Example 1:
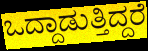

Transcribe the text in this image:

ಒದ್ದಾಡುತ್ತಿದ್ದರೆ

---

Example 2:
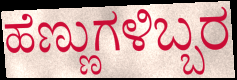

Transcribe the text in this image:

ಹೆಣ್ಣುಗಳಿಬ್ಬರ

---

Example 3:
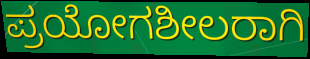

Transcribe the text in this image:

ಪ್ರಯೋಗಶೀಲರಾಗಿ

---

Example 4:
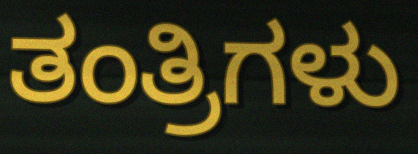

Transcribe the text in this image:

ತಂತ್ರಿಗಳು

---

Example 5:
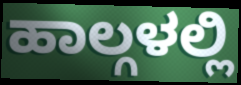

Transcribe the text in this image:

ಹಾಲ್ಗಳಲ್ಲಿ